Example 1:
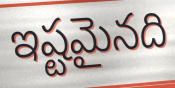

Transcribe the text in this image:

ఇష్టమైనది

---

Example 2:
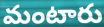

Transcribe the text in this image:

మంటారు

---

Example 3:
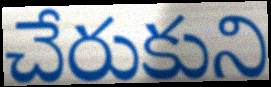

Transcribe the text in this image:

చేరుకుని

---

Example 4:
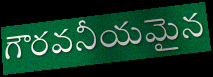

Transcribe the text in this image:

గౌరవనీయమైన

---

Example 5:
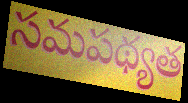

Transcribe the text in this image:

సమపథ్యత